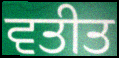
ਵਤੀਤ